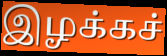
இழக்கச்